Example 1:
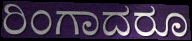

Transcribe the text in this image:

ರಿಂಗಾದರೂ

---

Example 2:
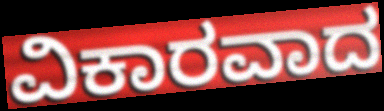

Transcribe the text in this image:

ವಿಕಾರವಾದ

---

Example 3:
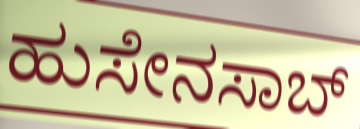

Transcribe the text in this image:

ಹುಸೇನಸಾಬ್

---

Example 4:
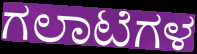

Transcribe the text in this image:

ಗಲಾಟೆಗಳ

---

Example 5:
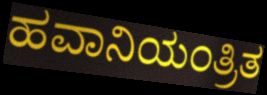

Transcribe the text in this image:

ಹವಾನಿಯಂತ್ರಿತ